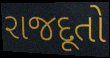
રાજદૂતો